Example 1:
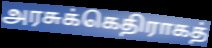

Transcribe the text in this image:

அரசுக்கெதிராகத்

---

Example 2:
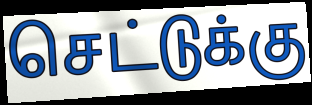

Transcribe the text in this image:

செட்டுக்கு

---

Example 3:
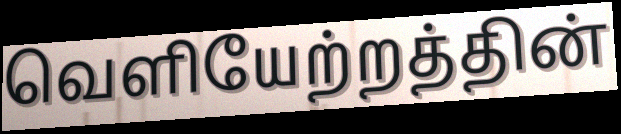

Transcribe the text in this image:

வெளியேற்றத்தின்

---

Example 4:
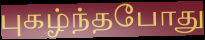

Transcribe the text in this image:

புகழ்ந்தபோது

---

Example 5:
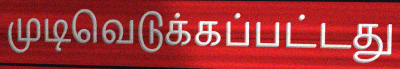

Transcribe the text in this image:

முடிவெடுக்கப்பட்டது